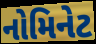
નોમિનેટ